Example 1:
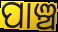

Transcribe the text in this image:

ପାଞ୍ଚ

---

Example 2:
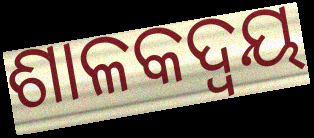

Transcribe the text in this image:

ଶାଳକଦ୍ୱୟ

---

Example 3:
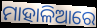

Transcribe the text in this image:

ମାହାଳିଆରେ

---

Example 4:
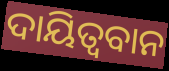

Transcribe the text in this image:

ଦାୟିତ୍ଵବାନ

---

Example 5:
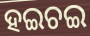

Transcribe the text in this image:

ହଇଚଇ